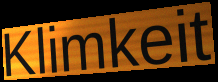
Klimkeit